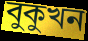
বুকুখন